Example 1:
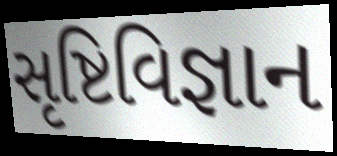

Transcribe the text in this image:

સૃષ્ટિવિજ્ઞાન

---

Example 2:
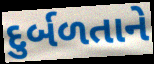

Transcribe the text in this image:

દુર્બળતાને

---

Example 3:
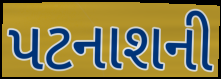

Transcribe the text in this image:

પટનાશની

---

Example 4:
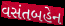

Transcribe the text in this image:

વસંતબહેન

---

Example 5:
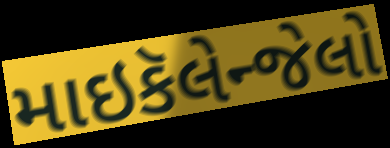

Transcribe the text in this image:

માઇકૅલેન્જેલો